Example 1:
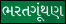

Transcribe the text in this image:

ભરતગૂંથણ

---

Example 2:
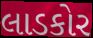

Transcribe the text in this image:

લાડકોર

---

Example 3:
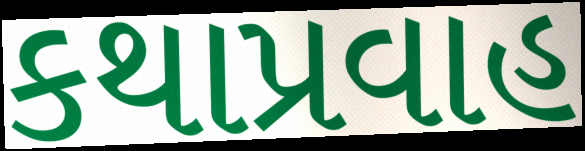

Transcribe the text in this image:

કથાપ્રવાહ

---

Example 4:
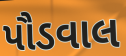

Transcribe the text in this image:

પૌડવાલ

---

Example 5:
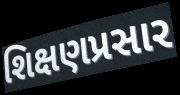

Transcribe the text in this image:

શિક્ષણપ્રસાર